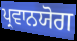
ਪ੍ਰਵਾਨਯੋਗ